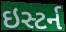
ઇસ્ટર્ન